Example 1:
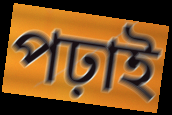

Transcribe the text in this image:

পঢ়াই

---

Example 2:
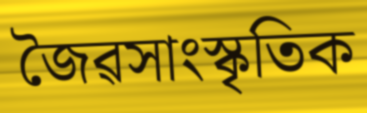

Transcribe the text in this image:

জৈৱসাংস্কৃতিক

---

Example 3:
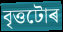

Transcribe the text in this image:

বৃত্তটোৰ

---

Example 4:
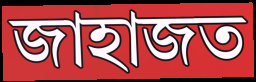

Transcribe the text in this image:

জাহাজত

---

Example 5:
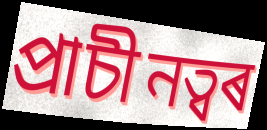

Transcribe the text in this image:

প্ৰাচীনত্বৰ